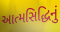
આત્મસિદ્ધિનું